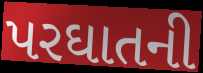
પરઘાતની